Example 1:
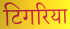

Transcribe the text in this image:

टिगरिया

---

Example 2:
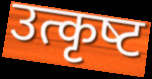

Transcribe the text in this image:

उत्‍कृष्‍ट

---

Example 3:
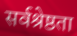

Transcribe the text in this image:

सर्वश्रेष्ठता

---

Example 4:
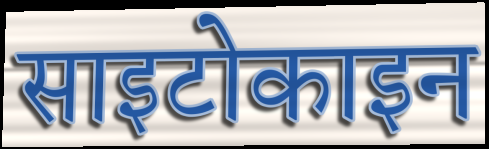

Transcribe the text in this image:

साइटोकाइन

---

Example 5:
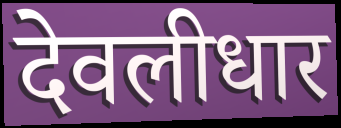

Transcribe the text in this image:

देवलीधार